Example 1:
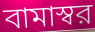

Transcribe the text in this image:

বামাস্বর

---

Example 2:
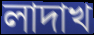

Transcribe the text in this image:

লাদাখ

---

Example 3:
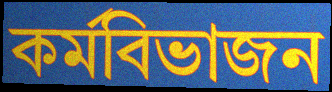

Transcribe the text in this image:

কর্মবিভাজন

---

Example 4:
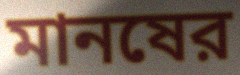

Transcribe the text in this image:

মানষের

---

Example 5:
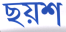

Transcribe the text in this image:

ছয়শ